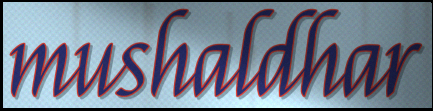
mushaldhar